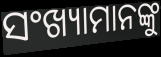
ସଂଖ୍ୟାମାନଙ୍କୁ